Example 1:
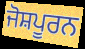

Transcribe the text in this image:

ਜੋਸ਼ਪੂਰਨ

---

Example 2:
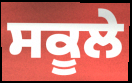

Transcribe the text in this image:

ਸਕੂਲੇ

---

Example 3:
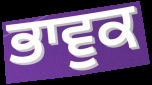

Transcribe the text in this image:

ਭਾਵੁਕ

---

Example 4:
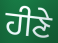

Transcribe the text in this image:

ਹੀਣੇ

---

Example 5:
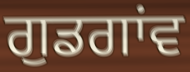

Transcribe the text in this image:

ਗੁਡਗਾਂਵ